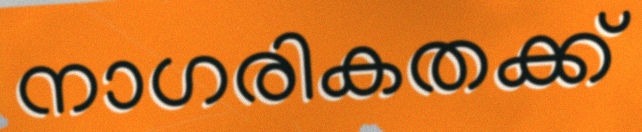
നാഗരികതക്ക്